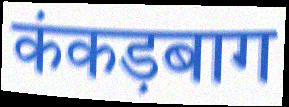
कंकड़बाग